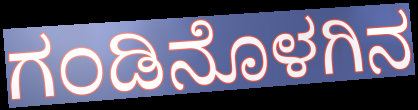
ಗಂಡಿನೊಳಗಿನ